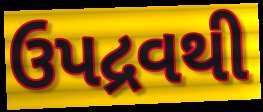
ઉપદ્રવથી